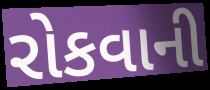
રોકવાની